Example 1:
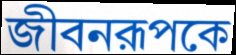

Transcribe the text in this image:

জীবনরূপকে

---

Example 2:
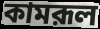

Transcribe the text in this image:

কামরূল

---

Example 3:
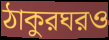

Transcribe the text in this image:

ঠাকুরঘরও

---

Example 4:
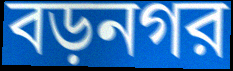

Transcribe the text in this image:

বড়নগর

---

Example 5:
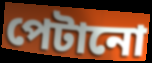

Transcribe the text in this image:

পেটানো